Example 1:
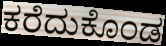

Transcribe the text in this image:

ಕರೆದುಕೊಂಡ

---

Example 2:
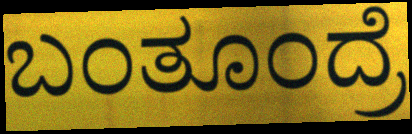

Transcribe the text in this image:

ಬಂತೂಂದ್ರೆ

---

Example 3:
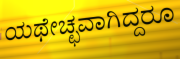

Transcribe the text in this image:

ಯಥೇಚ್ಛವಾಗಿದ್ದರೂ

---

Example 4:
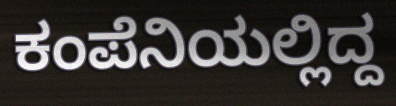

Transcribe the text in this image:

ಕಂಪೆನಿಯಲ್ಲಿದ್ದ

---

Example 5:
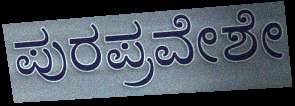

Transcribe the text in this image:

ಪುರಪ್ರವೇಶೇ